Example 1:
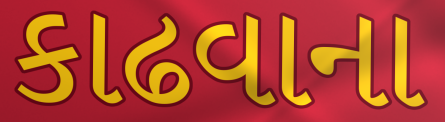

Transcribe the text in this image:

કાઢવાના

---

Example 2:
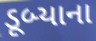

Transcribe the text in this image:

ડૂબ્યાના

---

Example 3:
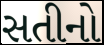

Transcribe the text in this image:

સતીનો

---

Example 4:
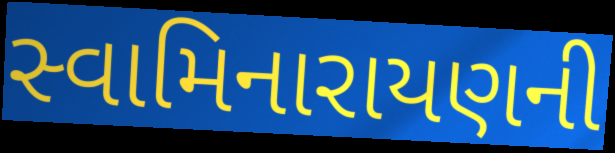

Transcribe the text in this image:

સ્વામિનારાયણની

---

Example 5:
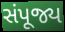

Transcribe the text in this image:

સંપૂજ્ય